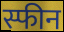
स्फीन